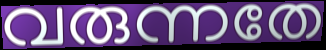
വരുന്നതേ